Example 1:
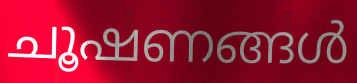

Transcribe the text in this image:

ചൂഷണങ്ങൾ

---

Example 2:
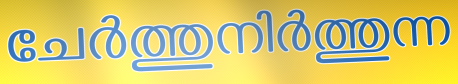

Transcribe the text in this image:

ചേർത്തുനിർത്തുന്ന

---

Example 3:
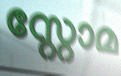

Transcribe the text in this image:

സ്റ്റോമ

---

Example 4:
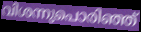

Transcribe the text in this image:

വിശന്നുപൊരിഞ്ഞ്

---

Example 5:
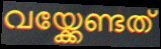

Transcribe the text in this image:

വയ്ക്കേണ്ടത്